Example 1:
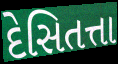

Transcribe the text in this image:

દેસિતત્તા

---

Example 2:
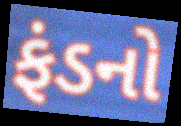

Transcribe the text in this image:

ફંડનો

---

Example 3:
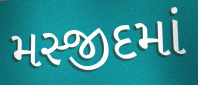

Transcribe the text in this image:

મસ્જીદમાં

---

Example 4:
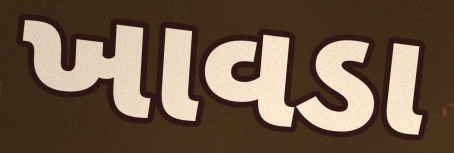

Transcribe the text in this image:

ખાવડા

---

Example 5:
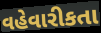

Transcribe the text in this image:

વહેવારીકતા